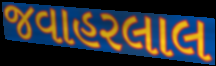
જવાહરલાલ